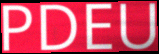
PDEU